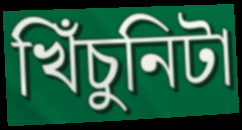
খিঁচুনিটা